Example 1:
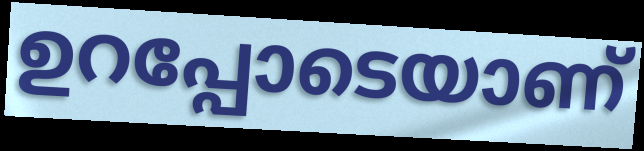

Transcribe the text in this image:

ഉറപ്പോടെയാണ്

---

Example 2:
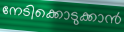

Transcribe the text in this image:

നേടിക്കൊടുക്കാൻ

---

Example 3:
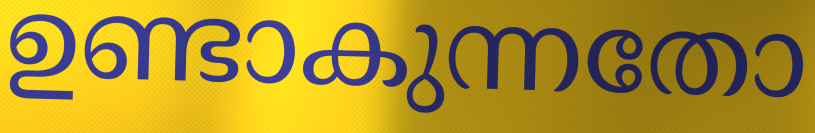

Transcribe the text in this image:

ഉണ്ടാകുന്നതോ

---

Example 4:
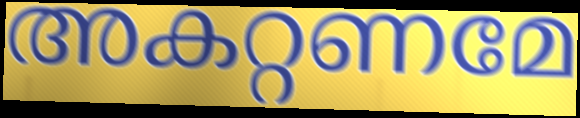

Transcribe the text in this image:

അകറ്റണമേ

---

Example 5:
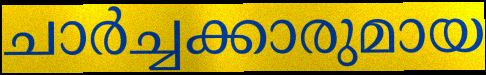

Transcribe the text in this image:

ചാർച്ചക്കാരുമായ